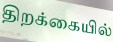
திறக்கையில்